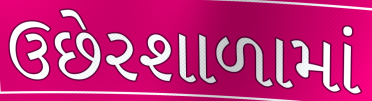
ઉછેરશાળામાં